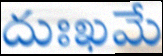
దుఃఖమే